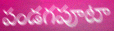
పండగపూటా